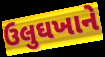
ઉલુઘખાને